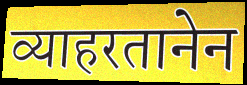
व्याहरतानेन